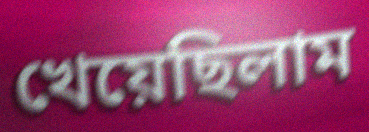
খেয়েছিলাম